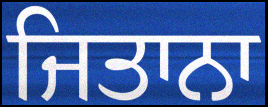
ਜਿਤਾਨਾ